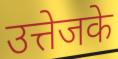
उत्तेजके